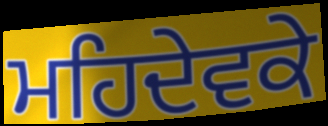
ਮਹਿਦੇਵਕੇ